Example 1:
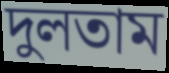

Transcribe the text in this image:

দুলতাম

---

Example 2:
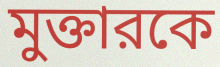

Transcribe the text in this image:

মুক্তারকে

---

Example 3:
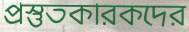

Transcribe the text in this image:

প্রস্তুতকারকদের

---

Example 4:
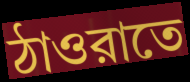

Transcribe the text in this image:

ঠাওরাতে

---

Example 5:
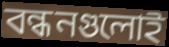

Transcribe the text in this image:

বন্ধনগুলোই